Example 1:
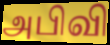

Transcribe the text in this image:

அபிவி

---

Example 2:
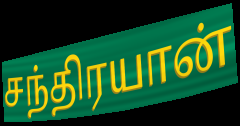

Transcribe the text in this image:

சந்திரயான்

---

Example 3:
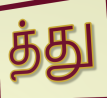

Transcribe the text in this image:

த்து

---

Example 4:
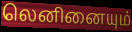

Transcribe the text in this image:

லெனினையும்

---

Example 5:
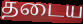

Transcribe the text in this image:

தடைய